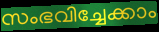
സംഭവിച്ചേക്കാം